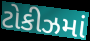
ટોકીઝમાં